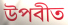
উপবীত